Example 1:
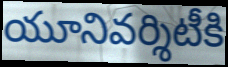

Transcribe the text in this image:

యూనివర్శిటీకి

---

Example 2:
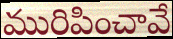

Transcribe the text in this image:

మురిపించావే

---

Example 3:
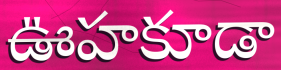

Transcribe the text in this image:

ఊహకూడా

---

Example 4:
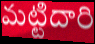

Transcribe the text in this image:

మట్టిదారి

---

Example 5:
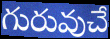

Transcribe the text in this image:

గురువుచే